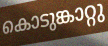
കൊടുങ്കാറ്റു